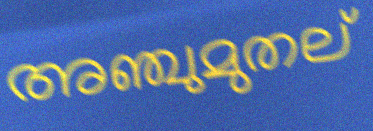
അഞ്ചുമുതല്